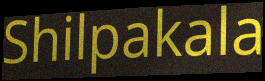
Shilpakala